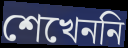
শেখেননি